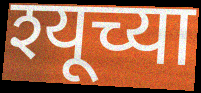
श्यूच्या